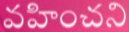
వహించని